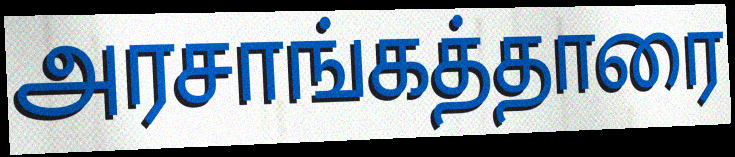
அரசாங்கத்தாரை